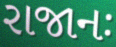
રાજાનઃ